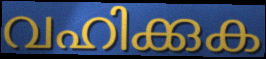
വഹിക്കുക